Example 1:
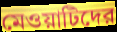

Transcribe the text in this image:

মেওয়াটিদের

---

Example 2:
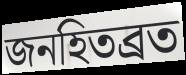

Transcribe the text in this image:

জনহিতব্রত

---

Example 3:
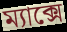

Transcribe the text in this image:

ম্যাক্সে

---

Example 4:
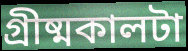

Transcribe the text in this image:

গ্রীষ্মকালটা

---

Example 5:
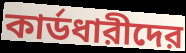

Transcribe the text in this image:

কার্ডধারীদের